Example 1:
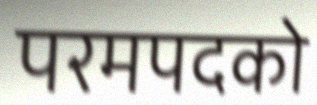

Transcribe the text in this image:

परमपदको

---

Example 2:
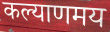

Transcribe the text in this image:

कल्याणमय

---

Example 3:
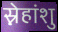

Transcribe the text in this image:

स्नेहांशु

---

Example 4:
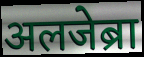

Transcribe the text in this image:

अलजेब्रा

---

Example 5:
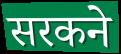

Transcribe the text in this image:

सरकने